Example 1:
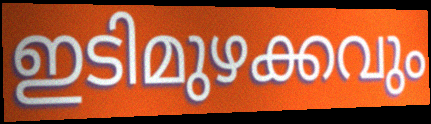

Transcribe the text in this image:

ഇടിമുഴക്കവും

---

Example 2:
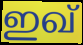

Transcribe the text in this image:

ഇഖ്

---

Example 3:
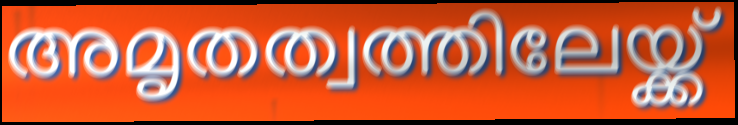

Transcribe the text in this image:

അമൃതത്വത്തിലേയ്ക്ക്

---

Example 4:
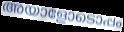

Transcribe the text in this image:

അയാളോടൊപ്പം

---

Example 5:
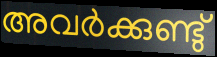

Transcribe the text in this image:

അവർക്കുണ്ടു്